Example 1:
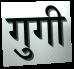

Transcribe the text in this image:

गुगी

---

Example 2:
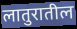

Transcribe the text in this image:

लातुरातील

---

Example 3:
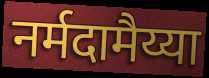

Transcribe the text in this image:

नर्मदामैय्या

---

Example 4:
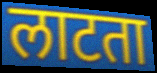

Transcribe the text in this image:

लाटता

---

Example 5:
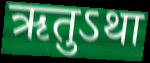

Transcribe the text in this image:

ऋतुऽथा